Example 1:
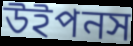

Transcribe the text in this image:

উইপনস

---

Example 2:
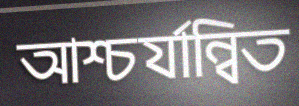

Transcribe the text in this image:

আশ্চর্যান্বিত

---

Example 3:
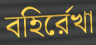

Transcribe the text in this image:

বহির্রেখা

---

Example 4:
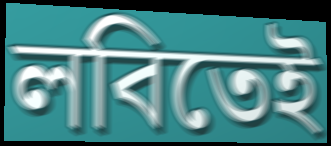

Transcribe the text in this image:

লবিতেই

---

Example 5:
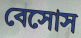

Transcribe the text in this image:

বেসোস